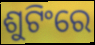
ଶୁଟିଂରେ